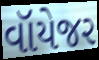
વૉયેજર